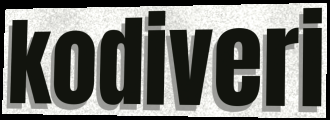
kodiveri